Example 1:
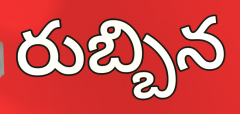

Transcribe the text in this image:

రుబ్బిన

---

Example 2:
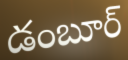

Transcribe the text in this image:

డంబూర్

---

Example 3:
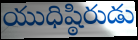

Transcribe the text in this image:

యుధిష్ఠిరుడు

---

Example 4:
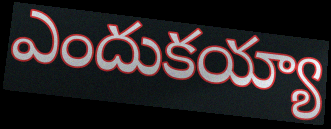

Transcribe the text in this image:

ఎందుకయ్యా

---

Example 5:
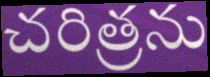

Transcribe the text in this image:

చరిత్రను